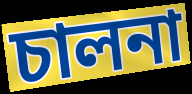
চালনা